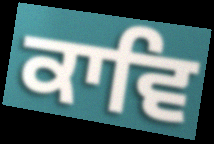
ਕਾਵਿ